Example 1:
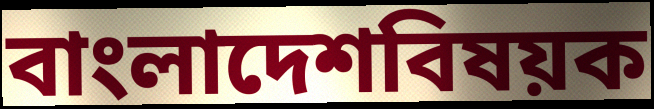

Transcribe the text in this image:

বাংলাদেশবিষয়ক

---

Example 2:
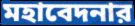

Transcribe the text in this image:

মহাবেদনার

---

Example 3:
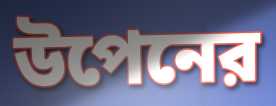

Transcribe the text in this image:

উপেনের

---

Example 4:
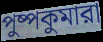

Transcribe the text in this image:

পুষ্পকুমারা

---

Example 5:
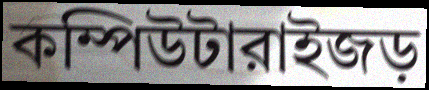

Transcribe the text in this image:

কম্পিউটারাইজড়